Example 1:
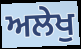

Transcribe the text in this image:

ਅਲੇਖੁ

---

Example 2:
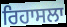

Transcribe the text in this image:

ਰਿਹਾਸਲਾ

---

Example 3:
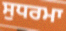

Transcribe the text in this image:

ਸੁਧਰਮਾ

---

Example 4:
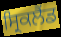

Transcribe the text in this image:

ਸ੍ਰਿਕਲੈਂਡ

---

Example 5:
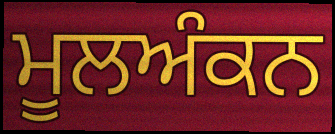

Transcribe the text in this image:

ਮੂਲਅੰਕਨ